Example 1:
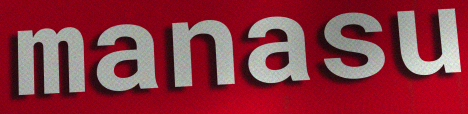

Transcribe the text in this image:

manasu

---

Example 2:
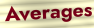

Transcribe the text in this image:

Averages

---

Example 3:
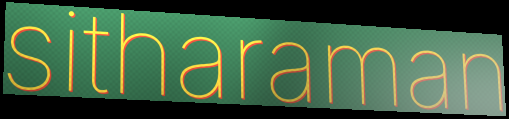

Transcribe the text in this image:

sitharaman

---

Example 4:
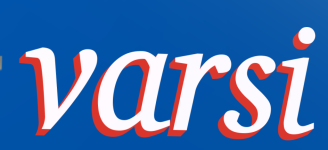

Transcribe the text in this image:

varsi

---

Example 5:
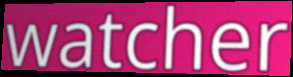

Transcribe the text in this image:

watcher